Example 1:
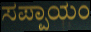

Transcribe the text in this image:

ಸಪ್ಪಾಯಂ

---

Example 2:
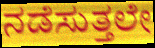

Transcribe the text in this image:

ನಡೆಸುತ್ತಲೇ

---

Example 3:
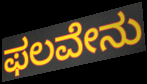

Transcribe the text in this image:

ಫಲವೇನು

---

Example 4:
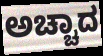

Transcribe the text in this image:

ಅಚ್ಚಾದ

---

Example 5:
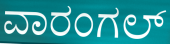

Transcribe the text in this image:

ವಾರಂಗಲ್